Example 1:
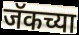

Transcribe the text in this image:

जॅकच्या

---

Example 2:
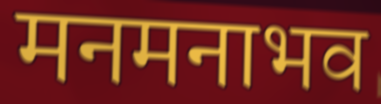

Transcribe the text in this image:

मनमनाभव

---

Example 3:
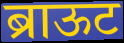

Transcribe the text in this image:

ब्राऊट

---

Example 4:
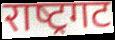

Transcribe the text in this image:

राष्ट्रगट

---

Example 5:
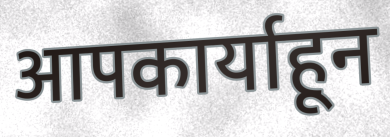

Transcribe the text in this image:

आपकार्याहून